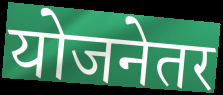
योजनेतर